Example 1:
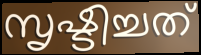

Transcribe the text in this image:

സൃഷ്ടിച്ചത്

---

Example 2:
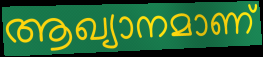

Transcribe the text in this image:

ആഖ്യാനമാണ്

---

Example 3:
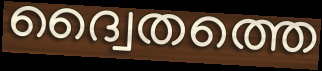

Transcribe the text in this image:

ദ്വൈതത്തെ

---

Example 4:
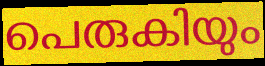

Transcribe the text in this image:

പെരുകിയും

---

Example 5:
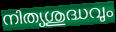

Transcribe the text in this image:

നിത്യശുദ്ധവും